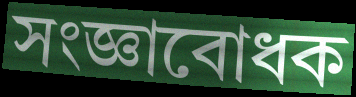
সংজ্ঞাবোধক